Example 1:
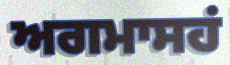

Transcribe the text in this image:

ਅਗਮਾਸਹਂ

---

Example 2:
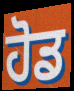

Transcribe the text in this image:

ਹੋਡ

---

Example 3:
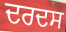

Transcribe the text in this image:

ਦਰਦਸ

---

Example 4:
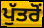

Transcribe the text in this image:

ਪੁੱਤਰੋਂ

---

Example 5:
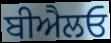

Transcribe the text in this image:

ਬੀਐਲਓ